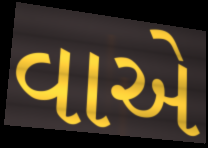
વાએ